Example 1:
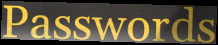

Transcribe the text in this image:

Passwords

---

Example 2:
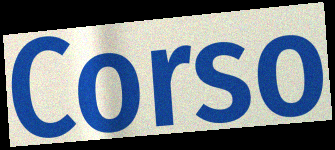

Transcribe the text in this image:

Corso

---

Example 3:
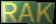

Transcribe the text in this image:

RAK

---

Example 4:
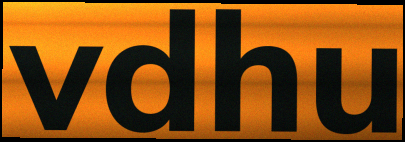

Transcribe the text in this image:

vdhu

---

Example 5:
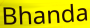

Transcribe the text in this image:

Bhanda